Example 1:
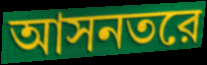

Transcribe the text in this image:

আসনতরে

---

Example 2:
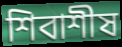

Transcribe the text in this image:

শিবাশীষ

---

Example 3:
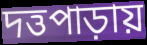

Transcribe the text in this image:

দত্তপাড়ায়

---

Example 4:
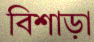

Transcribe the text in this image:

বিশাড়া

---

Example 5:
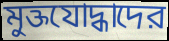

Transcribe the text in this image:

মুক্তযোদ্ধাদের